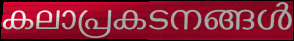
കലാപ്രകടനങ്ങൾ